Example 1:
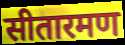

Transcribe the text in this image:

सीतारमण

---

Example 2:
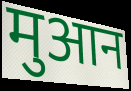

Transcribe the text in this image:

मुआन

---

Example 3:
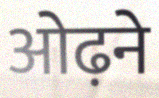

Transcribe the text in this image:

ओढ़ने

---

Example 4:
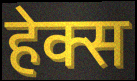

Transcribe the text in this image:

हेक्स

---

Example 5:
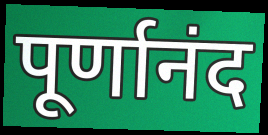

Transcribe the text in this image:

पूर्णानंद